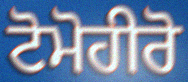
ਟੋਮੋਹੀਰੋ